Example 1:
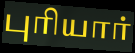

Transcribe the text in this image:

புரியார்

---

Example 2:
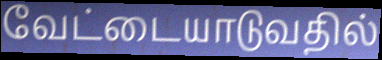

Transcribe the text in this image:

வேட்டையாடுவதில்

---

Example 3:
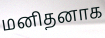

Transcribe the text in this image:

மனிதனாக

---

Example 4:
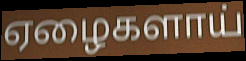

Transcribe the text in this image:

ஏழைகளாய்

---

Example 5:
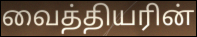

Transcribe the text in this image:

வைத்தியரின்